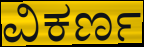
ವಿಕರ್ಣ